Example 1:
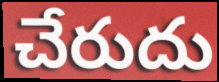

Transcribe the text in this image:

చేరుదు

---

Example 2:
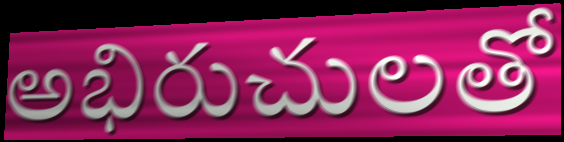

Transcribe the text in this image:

అభిరుచులతో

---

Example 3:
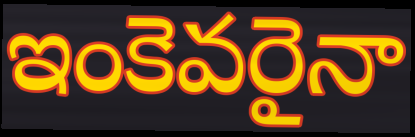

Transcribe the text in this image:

ఇంకెవరైనా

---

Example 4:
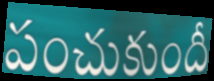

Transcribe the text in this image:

పంచుకుందీ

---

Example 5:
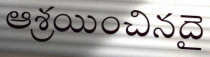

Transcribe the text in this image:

ఆశ్రయించినదై